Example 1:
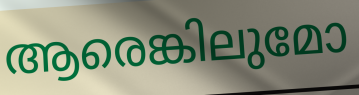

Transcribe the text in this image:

ആരെങ്കിലുമോ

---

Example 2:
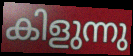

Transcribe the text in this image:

കിളുന്നു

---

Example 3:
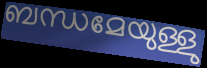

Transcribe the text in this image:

ബന്ധമേയുള്ളു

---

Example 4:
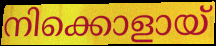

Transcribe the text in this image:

നിക്കൊളായ്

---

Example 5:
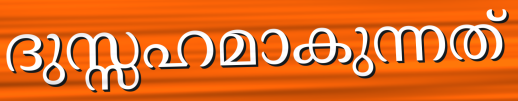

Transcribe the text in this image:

ദുസ്സഹമാകുന്നത്